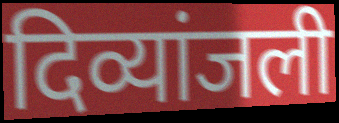
दिव्यांजली